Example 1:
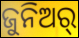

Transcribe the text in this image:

ଜୁନିଅର୍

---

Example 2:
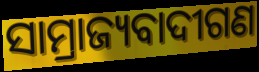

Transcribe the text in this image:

ସାମ୍ରାଜ୍ୟବାଦୀଗଣ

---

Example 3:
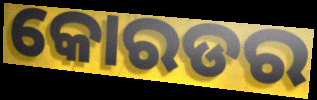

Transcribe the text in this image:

କୋରଡର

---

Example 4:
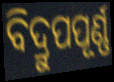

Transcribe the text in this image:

ବିଦ୍ରୁପପୂର୍ଣ୍ଣ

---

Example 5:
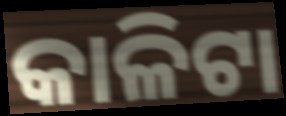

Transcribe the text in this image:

କାଳିଟା